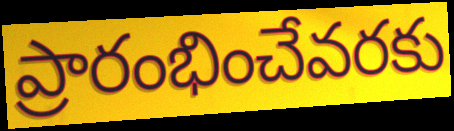
ప్రారంభించేవరకు